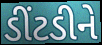
ડીંટડીને